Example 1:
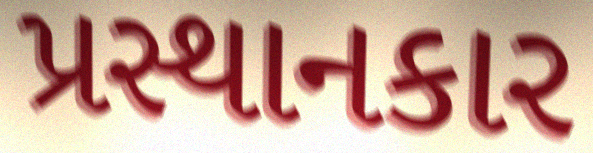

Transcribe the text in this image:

પ્રસ્થાનકાર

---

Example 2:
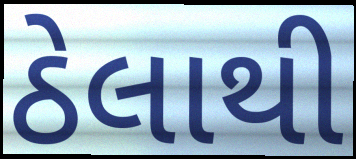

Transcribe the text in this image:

ઠેલાથી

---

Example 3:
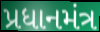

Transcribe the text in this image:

પ્રધાનમંત્ર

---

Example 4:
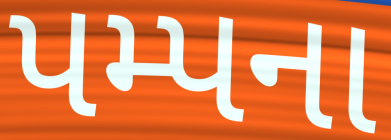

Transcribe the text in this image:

પમ્પના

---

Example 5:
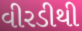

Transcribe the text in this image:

વીરડીથી